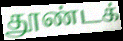
தூண்டக்